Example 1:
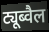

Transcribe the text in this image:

ट्यूब्वैल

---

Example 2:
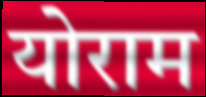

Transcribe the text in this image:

योराम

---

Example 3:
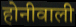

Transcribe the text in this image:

होनीवाली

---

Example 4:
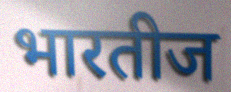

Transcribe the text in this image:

भारतीज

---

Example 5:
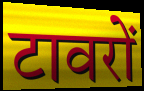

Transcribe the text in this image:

टावरों